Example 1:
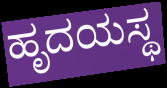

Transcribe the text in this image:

ಹೃದಯಸ್ಥ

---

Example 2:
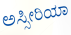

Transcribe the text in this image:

ಅಸ್ಸೀರಿಯಾ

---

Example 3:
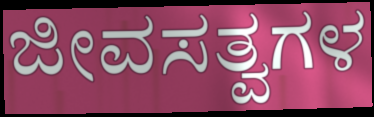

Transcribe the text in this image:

ಜೀವಸತ್ವಗಳ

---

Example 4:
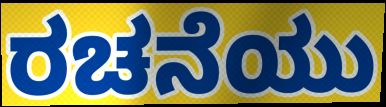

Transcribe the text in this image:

ರಚನೆಯು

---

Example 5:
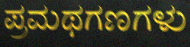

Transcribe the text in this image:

ಪ್ರಮಥಗಣಗಳು